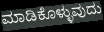
ಮಾಡಿಕೊಳ್ಳುವುದು